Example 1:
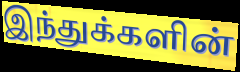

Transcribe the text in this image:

இந்துக்களின்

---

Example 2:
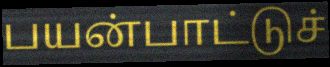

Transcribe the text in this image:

பயன்பாட்டுச்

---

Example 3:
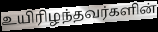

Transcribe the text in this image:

உயிரிழந்தவர்களின்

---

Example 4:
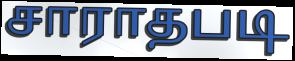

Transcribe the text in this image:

சாராதபடி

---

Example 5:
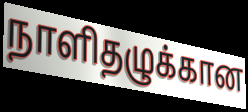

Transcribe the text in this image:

நாளிதழுக்கான